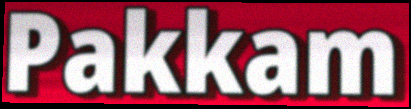
Pakkam